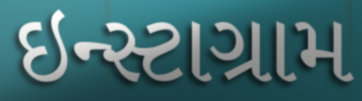
ઇન્સ્ટાગ્રામ